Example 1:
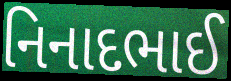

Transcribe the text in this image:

નિનાદભાઈ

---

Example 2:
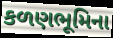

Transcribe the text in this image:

કળણભૂમિના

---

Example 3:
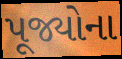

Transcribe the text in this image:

પૂજ્યોના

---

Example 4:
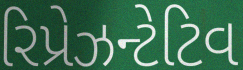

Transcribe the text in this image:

રિપ્રેઝન્ટેટિવ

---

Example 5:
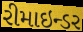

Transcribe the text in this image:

રીમાઇન્ડર